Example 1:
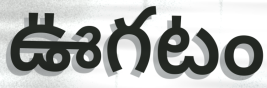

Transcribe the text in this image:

ఊగటం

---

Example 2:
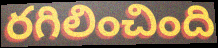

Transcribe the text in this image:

రగిలించింది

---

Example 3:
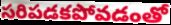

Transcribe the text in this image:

సరిపడకపోవడంతో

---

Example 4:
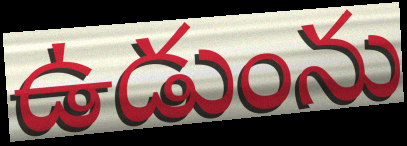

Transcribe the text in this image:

ఉడుంను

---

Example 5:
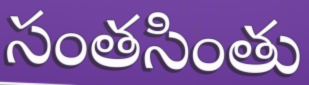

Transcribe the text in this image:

సంతసింతు